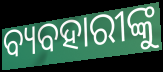
ବ୍ୟବହାରୀଙ୍କୁ